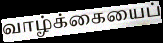
வாழ்க்கையைப்